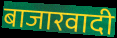
बाजारवादी